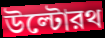
উল্টোরথ